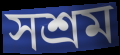
সশ্রম